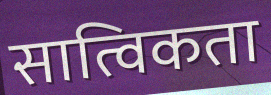
सात्विकता